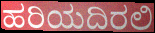
ಹರಿಯದಿರಲಿ